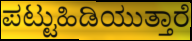
ಪಟ್ಟುಹಿಡಿಯುತ್ತಾರೆ